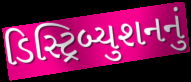
ડિસ્ટ્રિબ્યુશનનું